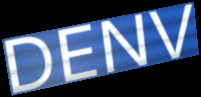
DENV